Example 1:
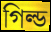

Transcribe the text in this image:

গিল্ড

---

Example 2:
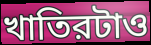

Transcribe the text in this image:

খাতিরটাও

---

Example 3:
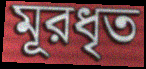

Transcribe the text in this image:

মূরধৃত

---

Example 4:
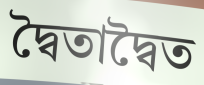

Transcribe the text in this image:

দ্বৈতাদ্বৈত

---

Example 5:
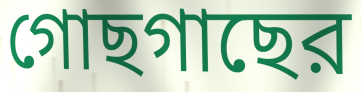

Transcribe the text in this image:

গোছগাছের